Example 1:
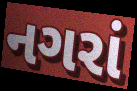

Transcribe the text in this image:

નગરાં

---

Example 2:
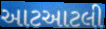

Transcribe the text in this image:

આટઆટલી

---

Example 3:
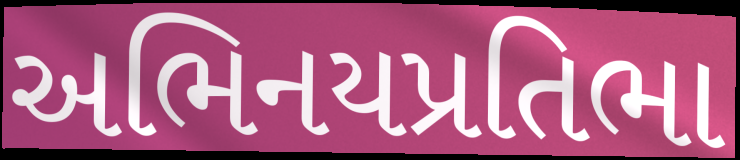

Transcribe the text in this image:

અભિનયપ્રતિભા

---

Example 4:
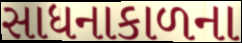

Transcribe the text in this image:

સાધનાકાળના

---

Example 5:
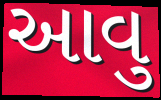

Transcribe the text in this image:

આવુ